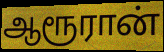
ஆரூரான்